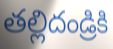
తల్లిదండ్రికి